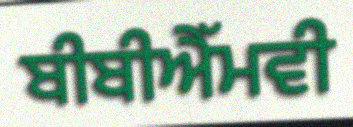
ਬੀਬੀਐੱਮਵੀ